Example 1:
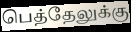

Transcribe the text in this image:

பெத்தேலுக்கு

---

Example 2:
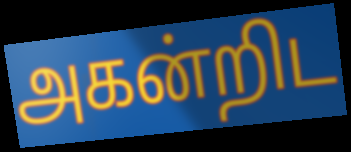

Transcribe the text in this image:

அகன்றிட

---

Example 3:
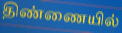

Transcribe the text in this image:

திண்ணையில்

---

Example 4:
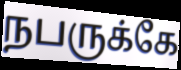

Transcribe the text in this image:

நபருக்கே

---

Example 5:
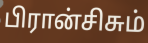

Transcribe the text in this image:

பிரான்சிசும்